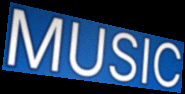
MUSIC